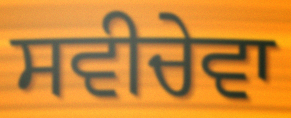
ਸਵੀਚੇਵਾ